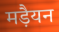
मड़ैयन